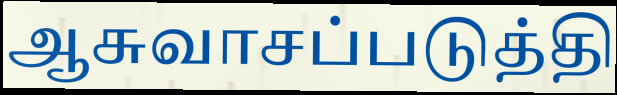
ஆசுவாசப்படுத்தி